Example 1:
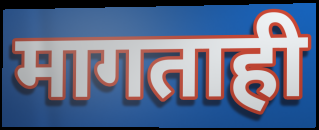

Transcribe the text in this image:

मागताही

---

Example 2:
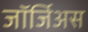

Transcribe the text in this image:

जॉर्जिअस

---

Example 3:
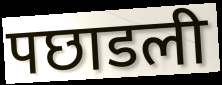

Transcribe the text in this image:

पछाडली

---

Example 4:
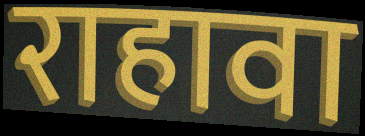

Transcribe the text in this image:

राहावा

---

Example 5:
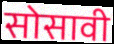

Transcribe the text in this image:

सोसावी